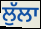
ਲੁੱਲਾ